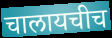
चालायचीच